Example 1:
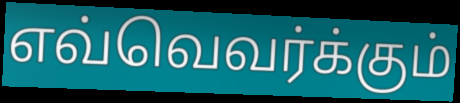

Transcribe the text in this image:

எவ்வெவர்க்கும்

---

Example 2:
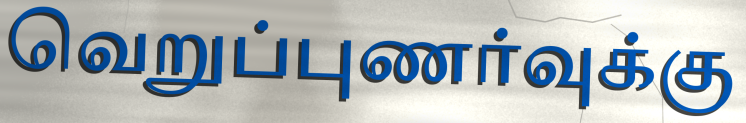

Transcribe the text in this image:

வெறுப்புணர்வுக்கு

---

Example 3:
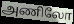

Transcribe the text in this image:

அணிலோ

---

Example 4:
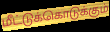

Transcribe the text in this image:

மீட்டுக்கொடுக்கும்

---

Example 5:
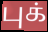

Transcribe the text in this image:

புக்